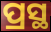
ପ୍ରସ୍ଥ